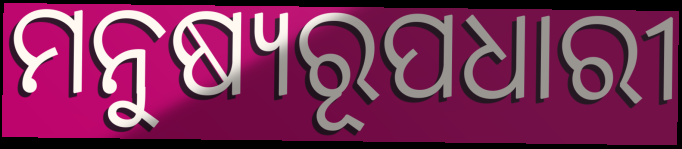
ମନୁଷ୍ୟରୂପଧାରୀ